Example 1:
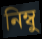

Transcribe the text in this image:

নিম্বু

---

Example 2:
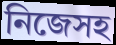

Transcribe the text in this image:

নিজেসহ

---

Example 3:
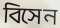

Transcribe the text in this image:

বিসেন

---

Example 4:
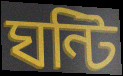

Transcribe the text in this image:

ঘন্টি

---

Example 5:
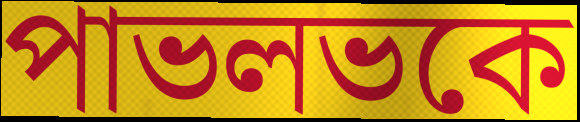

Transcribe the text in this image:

পাভলভকে